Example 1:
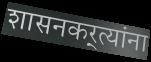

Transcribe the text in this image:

शासनकर्त्यांना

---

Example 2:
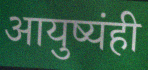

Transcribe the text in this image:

आयुष्यंही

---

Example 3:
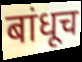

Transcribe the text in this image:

बांधूच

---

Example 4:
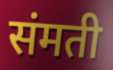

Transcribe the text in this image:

संमती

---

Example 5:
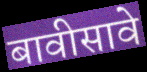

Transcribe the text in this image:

बावीसावे